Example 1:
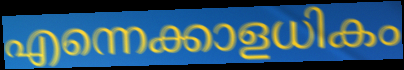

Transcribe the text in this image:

എന്നെക്കാളധികം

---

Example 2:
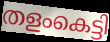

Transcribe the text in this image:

തളംകെട്ടി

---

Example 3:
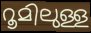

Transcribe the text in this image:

റൂമിലുള്ള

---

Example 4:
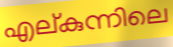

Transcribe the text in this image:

എല്കുന്നിലെ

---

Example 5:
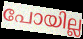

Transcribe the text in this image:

പോയില്ല